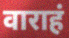
वाराहं